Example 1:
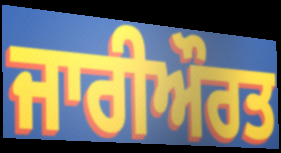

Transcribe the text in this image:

ਜਾਰੀਔਰਤ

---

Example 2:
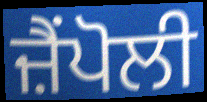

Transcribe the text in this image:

ਜ਼ੈਂਪੋਲੀ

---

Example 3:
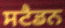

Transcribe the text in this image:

ਸਟੈਡਨ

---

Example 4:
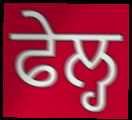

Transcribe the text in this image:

ਫੇਲ੍ਹ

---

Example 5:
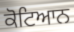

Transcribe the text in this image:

ਕੋਟਿਆਨ